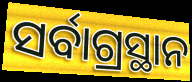
ସର୍ବାଗ୍ରସ୍ଥାନ